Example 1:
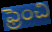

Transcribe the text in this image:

ఫ్రెంచి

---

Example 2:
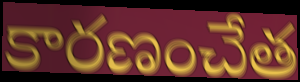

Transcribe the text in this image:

కారణంచేత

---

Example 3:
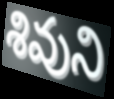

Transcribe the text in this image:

శివుని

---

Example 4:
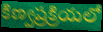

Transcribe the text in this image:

కిణ్వప్రక్రియలో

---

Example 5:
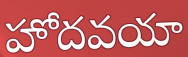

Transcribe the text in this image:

హోదవయా